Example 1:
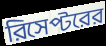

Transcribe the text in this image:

রিসেপ্টরের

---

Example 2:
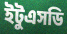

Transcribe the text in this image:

ইটুএসডি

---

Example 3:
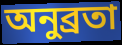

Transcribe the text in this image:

অনুব্রতা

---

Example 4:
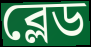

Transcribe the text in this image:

ব্লেড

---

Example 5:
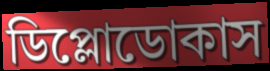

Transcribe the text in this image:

ডিপ্লোডোকাস